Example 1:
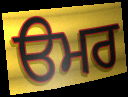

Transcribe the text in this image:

ੳਮਰ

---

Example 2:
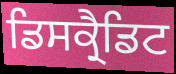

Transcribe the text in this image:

ਡਿਸਕ੍ਰੈਡਿਟ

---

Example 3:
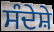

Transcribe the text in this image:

ਸੰਦੇਸ਼ੇ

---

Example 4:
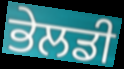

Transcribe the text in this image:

ਭੇਲਡੀ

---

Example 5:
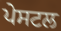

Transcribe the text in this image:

ਪੇਸਟਲ